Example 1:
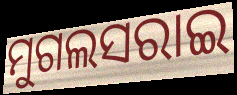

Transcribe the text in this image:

ମୁଗଲସରାଇ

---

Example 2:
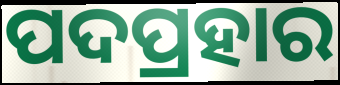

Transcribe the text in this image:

ପଦପ୍ରହାର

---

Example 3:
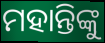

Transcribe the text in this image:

ମହାନ୍ତିଙ୍କୁ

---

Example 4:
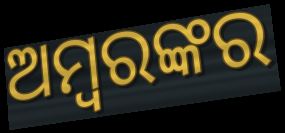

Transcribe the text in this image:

ଅମ୍ବରଙ୍କର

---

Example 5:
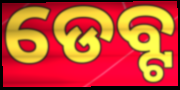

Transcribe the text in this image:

ଡେବ୍ଟ